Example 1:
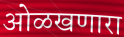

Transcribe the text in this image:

ओळखणारा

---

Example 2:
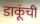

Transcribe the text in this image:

डाकूंची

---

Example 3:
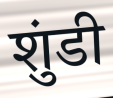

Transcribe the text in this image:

शुंडी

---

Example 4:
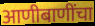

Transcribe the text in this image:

आणीबाणींचा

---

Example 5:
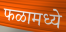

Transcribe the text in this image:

फळामध्ये